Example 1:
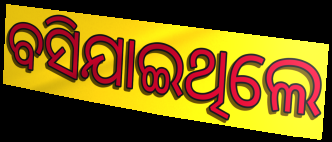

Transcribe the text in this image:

ବସିଯାଇଥିଲେ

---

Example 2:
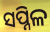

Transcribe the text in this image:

ସପ୍ନିଳ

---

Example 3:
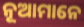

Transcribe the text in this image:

ନୂଆମାନେ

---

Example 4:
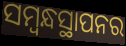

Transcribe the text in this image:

ସମ୍ବନ୍ଧସ୍ଥାପନର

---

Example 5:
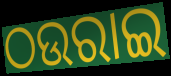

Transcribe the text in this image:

ଠଉରାଇ